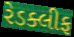
રેડક્લીફ